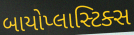
બાયોપ્લાસ્ટિક્સ